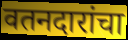
वतनदारांचा